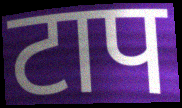
टाप